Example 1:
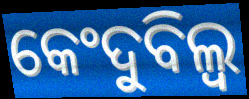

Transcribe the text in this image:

କେଂଦୁବିଲ୍ୱ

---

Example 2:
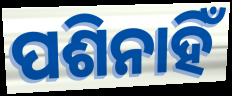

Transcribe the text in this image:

ପଶିନାହିଁ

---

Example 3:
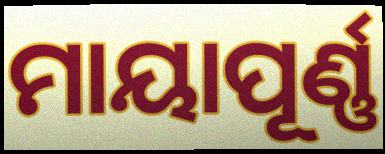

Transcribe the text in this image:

ମାୟାପୂର୍ଣ୍ଣ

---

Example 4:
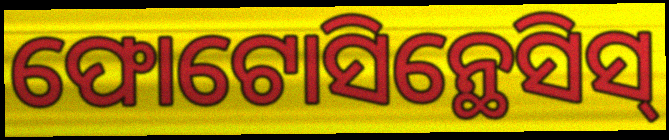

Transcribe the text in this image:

ଫୋଟୋସିନ୍ଥେସିସ୍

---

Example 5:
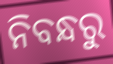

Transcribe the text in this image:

ନିବନ୍ଧରୁ